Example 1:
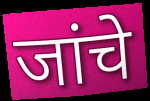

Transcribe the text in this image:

जांचे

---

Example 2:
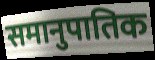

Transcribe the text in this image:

समानुपातिक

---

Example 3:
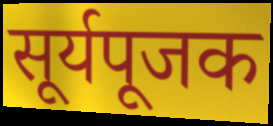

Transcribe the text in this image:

सूर्यपूजक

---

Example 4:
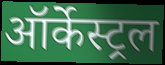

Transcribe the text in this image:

ऑर्केस्ट्रल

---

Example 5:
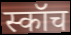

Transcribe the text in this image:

स्कॉच